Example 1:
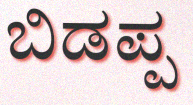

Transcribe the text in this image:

ಬಿಡಪ್ಪ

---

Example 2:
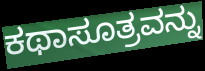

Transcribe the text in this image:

ಕಥಾಸೂತ್ರವನ್ನು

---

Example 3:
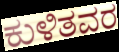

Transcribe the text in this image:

ಕುಳಿತವರ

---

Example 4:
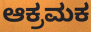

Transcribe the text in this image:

ಆಕ್ರಮಕ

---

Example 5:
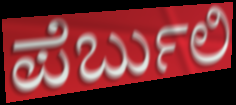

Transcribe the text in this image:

ಪೆರ್ಬುಲಿ